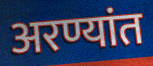
अरण्यांत